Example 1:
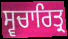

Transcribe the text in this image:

ਸ੍ਵਚਾਰਿਤ੍ਰ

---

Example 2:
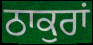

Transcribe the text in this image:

ਠਾਕੁਰਾਂ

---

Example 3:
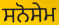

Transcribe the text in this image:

ਸਨੋਸੇਮ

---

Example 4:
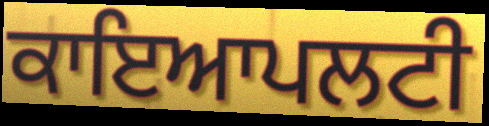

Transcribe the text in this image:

ਕਾਇਆਪਲਟੀ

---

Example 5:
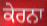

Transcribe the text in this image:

ਕੇਰਨਾ